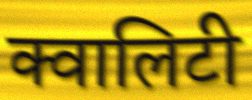
क्‍वालिटी